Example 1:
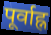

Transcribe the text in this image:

पूर्वाह्न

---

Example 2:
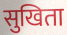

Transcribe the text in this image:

सुखिता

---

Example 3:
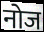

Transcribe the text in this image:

नोज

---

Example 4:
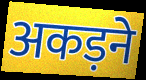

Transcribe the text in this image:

अकड़ने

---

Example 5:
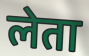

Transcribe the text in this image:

लेता